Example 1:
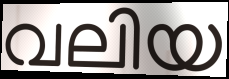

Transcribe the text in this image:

വലിയ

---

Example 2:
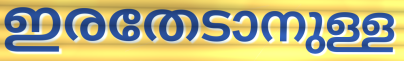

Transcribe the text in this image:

ഇരതേടാനുള്ള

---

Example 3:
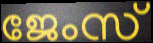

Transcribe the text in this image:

ജേംസ്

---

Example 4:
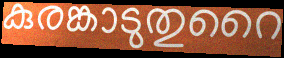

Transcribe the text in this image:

കുരങ്കാടുതുറൈ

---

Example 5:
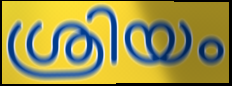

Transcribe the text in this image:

ശ്രിയം